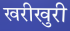
खरीखुरी